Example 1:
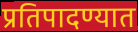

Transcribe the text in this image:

प्रतिपादण्यात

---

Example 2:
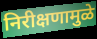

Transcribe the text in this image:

निरीक्षणामुळे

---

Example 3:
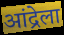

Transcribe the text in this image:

आंद्रेला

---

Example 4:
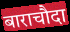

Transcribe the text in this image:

बाराचौदा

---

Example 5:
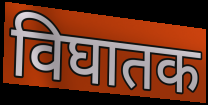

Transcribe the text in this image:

विघातक